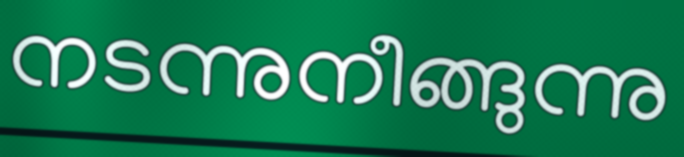
നടന്നുനീങ്ങുന്നു